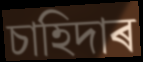
চাহিদাৰ